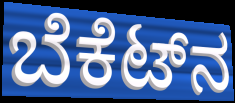
ಬೆಕೆಟ್‌ನ